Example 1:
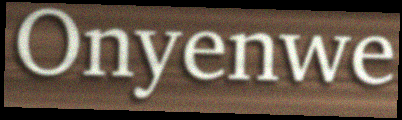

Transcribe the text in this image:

Onyenwe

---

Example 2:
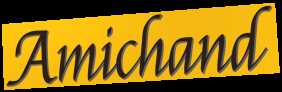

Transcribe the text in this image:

Amichand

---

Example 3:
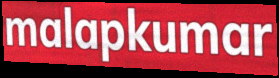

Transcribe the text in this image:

malapkumar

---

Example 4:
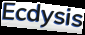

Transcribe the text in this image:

Ecdysis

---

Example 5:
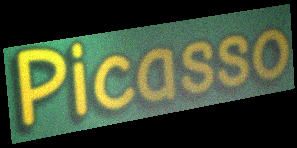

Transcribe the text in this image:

Picasso